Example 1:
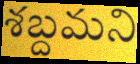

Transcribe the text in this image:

శబ్దమని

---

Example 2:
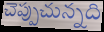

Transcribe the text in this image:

చెప్పుచున్నది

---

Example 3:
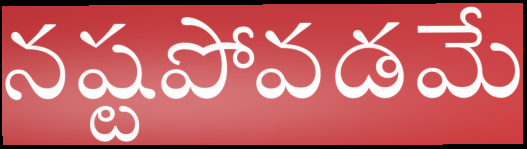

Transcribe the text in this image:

నష్టపోవడమే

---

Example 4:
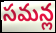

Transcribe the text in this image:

సమన్ల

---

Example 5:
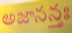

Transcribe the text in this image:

అజానన్తః